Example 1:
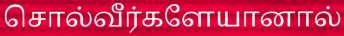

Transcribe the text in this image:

சொல்வீர்களேயானால்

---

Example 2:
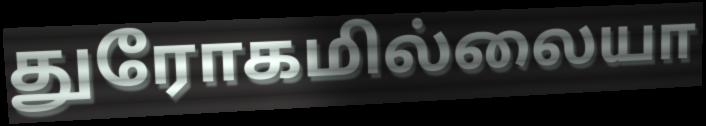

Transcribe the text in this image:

துரோகமில்லையா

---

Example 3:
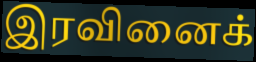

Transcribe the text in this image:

இரவினைக்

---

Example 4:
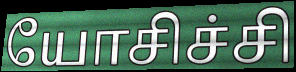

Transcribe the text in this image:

யோசிச்சி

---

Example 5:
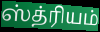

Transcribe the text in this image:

ஸ்த்ரியம்